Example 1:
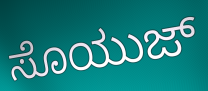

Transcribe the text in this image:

ಸೊಯುಜ್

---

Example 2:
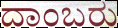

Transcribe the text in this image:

ದಾಂಬರು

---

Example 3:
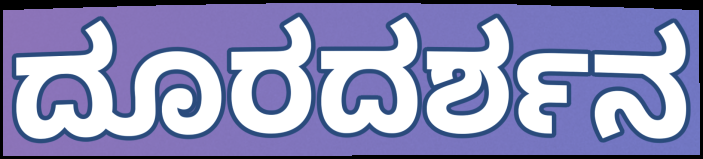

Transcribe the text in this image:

ದೂರದರ್ಶನ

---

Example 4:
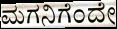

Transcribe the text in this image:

ಮಗನಿಗೆಂದೇ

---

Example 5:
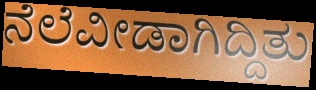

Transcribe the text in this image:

ನೆಲೆವೀಡಾಗಿದ್ದಿತು